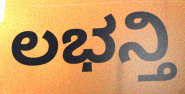
ಲಭನ್ತಿ